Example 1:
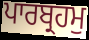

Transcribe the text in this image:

ਪਾਰਬ੍ਰਹਮੁ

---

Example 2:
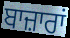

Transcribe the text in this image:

ਬਾਜ਼ਾਰਾਂ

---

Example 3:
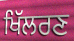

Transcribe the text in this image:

ਖਿੱਲਰਣ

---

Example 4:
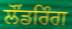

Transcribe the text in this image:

ਲੌਂਡਰਿੰਗ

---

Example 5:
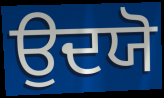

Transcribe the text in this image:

ਉਦਯੋ